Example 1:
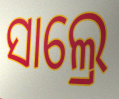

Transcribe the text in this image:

ସାଲ୍ରେ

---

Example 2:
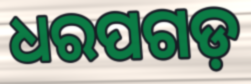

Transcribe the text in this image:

ଧରପଗଡ଼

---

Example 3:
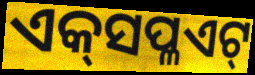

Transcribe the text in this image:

ଏକ୍‍ସପ୍ଳଏଟ୍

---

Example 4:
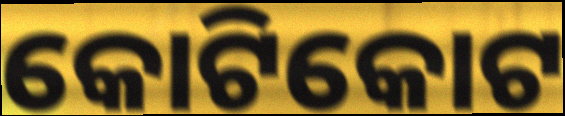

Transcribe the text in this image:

କୋଟିକୋଟ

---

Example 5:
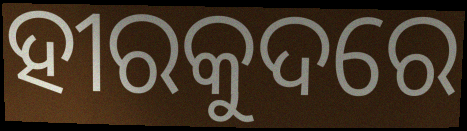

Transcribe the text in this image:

ହୀରକୁଦରେ